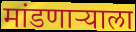
मांडणाऱ्याला